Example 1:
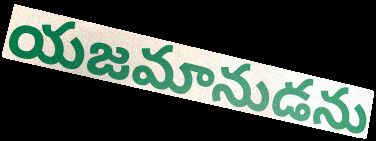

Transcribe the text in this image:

యజమానుడను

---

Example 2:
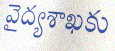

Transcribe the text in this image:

వైద్యశాఖకు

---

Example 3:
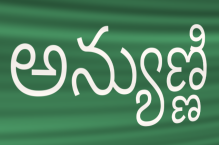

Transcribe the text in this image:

అన్యుణ్ణి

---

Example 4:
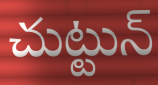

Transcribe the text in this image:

చుట్టున్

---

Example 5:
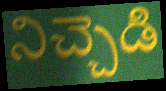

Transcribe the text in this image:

నిచ్చెడి